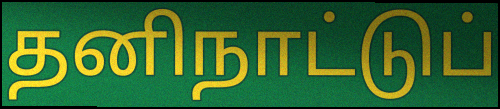
தனிநாட்டுப்